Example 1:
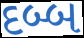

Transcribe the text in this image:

દબ્બ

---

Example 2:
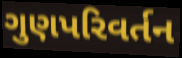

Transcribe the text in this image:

ગુણપરિવર્તન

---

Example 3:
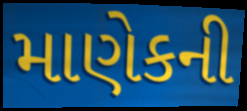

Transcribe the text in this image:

માણેકની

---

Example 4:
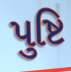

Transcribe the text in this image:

પુષ્ટિ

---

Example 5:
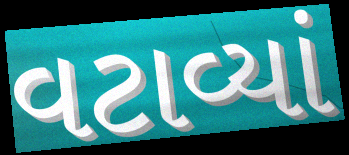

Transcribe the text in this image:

વટાવ્યાં